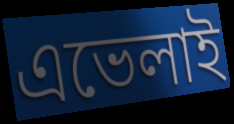
এভেলাই